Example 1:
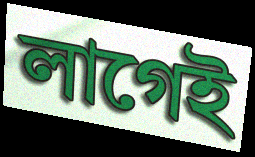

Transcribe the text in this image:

লাগেই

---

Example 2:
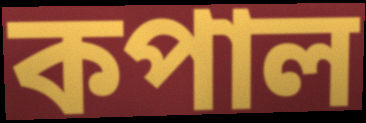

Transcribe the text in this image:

কপাল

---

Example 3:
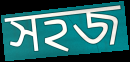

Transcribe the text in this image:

সহজ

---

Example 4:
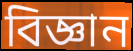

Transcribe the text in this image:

বিজ্ঞান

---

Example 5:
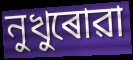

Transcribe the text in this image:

নুখুৰোৱা